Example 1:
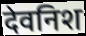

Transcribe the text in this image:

देवनिश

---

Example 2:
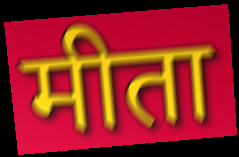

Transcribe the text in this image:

मीता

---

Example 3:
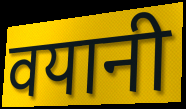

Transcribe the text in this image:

वयानी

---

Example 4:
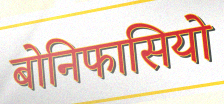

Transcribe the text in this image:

बोनिफासियो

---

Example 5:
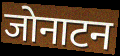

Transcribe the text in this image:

जोनाटन